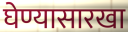
घेण्यासारखा